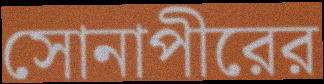
সোনাপীরের